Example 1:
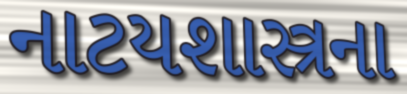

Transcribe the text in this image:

નાટયશાસ્ત્રના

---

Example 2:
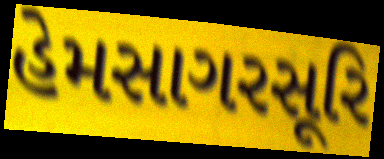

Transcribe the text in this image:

હેમસાગરસૂરિ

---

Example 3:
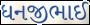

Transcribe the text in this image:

ધનજીભાઈ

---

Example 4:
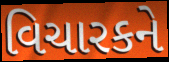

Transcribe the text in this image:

વિચારકને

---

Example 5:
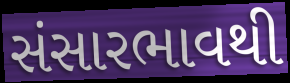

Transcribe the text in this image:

સંસારભાવથી